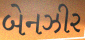
બેનઝીર